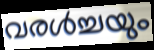
വരൾച്ചയും